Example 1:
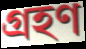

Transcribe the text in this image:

গ্ৰহণ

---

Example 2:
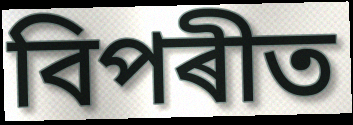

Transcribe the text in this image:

বিপৰীত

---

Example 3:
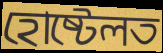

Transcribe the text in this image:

হোষ্টেলত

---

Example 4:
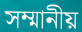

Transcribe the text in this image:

সম্মানীয়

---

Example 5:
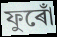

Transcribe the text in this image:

ফুৰোঁ